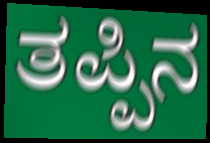
ತಪ್ಪಿನ